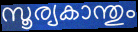
സൂര്യകാന്തും